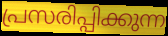
പ്രസരിപ്പിക്കുന്ന